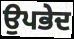
ਉਪਭੇਦ